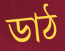
ডাঠ